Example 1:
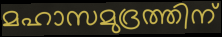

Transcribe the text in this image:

മഹാസമുദ്രത്തിന്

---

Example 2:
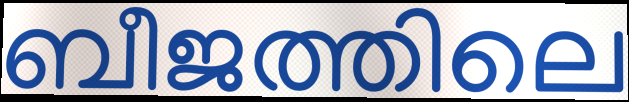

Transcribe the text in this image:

ബീജത്തിലെ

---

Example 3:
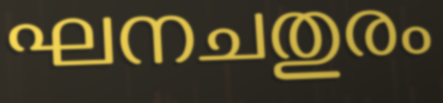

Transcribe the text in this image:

ഘനചതുരം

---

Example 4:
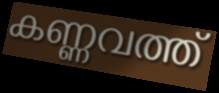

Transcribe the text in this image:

കണ്ണവത്ത്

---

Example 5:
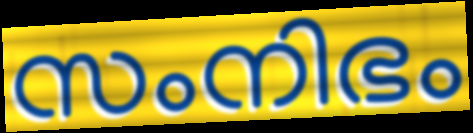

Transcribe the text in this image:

സംനിഭം